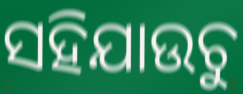
ସହିଯାଉଚୁ